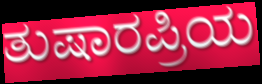
ತುಷಾರಪ್ರಿಯ